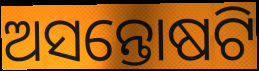
ଅସନ୍ତୋଷଟି